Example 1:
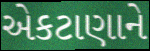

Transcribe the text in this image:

એકટાણાને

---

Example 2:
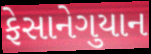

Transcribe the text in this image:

ફેસાનેગુયાન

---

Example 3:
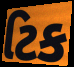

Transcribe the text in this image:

ટિક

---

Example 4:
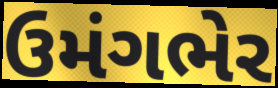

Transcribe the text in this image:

ઉમંગભેર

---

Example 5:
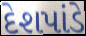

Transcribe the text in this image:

દેશપાંડે